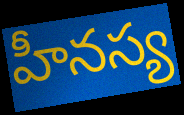
హీనస్య